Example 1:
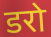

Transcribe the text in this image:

डरो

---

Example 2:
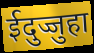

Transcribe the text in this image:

ईदुज्जुहा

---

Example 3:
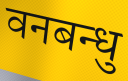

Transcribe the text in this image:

वनबन्धु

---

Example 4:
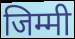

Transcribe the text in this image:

जिम्मी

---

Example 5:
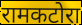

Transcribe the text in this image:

रामकटोरा